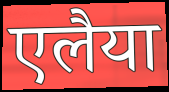
एलैया